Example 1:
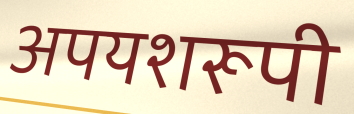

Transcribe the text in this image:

अपयशरूपी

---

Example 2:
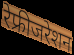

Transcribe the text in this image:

रेफ्रीजरेशन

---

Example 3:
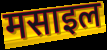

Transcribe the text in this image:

मसाइल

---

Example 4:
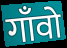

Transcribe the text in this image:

गाँवो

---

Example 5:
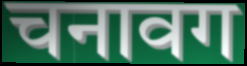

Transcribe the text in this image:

चनावग